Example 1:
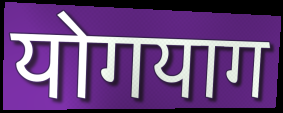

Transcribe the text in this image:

योगयाग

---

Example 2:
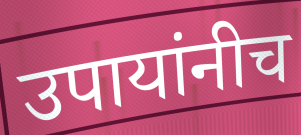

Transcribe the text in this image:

उपायांनीच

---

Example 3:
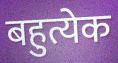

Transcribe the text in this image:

बहुत्येक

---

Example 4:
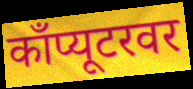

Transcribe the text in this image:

काँप्यूटरवर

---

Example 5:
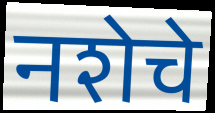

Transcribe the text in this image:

नशेचे